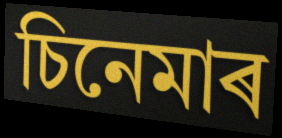
চিনেমাৰ